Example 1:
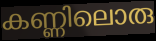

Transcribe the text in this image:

കണ്ണിലൊരു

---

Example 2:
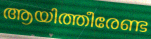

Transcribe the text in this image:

ആയിത്തീരേണ്ട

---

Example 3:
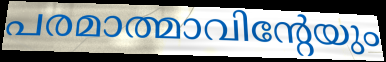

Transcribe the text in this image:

പരമാത്മാവിന്റേയും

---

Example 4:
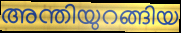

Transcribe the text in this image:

അന്തിയുറങ്ങിയ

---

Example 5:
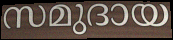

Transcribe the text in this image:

സമുദായ